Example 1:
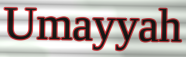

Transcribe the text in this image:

Umayyah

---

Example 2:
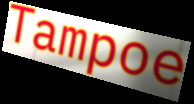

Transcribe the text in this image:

Tampoe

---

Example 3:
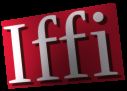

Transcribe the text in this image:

Iffi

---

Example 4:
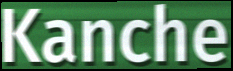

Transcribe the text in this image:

Kanche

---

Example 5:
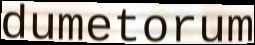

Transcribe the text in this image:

dumetorum